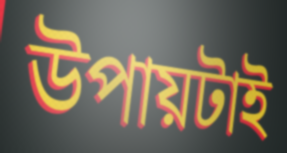
উপায়টাই